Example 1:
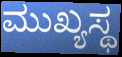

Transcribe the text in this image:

ಮುಖ್ಯಸ್ಥ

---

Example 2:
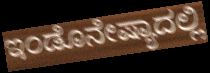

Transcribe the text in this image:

ಇಂಡೊನೇಷ್ಯಾದಲ್ಲಿ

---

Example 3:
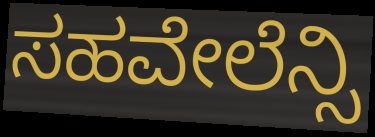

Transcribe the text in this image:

ಸಹವೇಲೆನ್ಸಿ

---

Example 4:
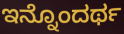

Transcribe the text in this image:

ಇನ್ನೊಂದರ್ಥ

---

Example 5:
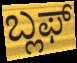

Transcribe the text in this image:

ಬ್ಲಫ್